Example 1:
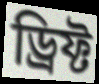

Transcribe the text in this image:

ড্রিফ্ট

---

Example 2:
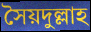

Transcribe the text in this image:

সৈয়দুল্লাহ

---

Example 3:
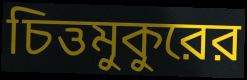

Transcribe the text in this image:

চিত্তমুকুরের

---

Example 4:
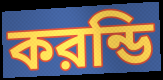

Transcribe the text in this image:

করন্ডি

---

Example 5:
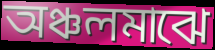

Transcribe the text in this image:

অঞ্চলমাঝে